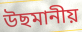
উছমানীয়